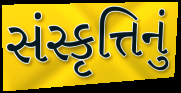
સંસ્કૃત્તિનું